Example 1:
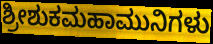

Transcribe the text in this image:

ಶ್ರೀಶುಕಮಹಾಮುನಿಗಳು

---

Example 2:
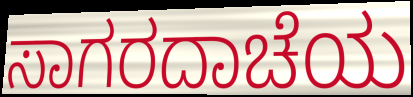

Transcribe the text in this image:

ಸಾಗರದಾಚೆಯ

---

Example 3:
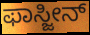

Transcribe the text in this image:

ಫಾಸ್ಜೀನ್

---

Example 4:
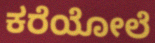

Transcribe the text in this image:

ಕರೆಯೋಲೆ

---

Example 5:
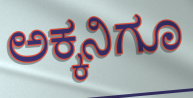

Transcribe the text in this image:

ಅಕ್ಕನಿಗೂ